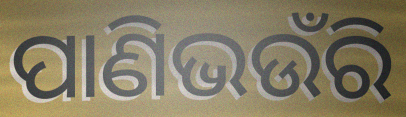
ପାଣିଭଉଁରି